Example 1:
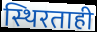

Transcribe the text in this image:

स्थिरताही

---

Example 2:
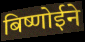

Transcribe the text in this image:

बिष्णोईने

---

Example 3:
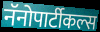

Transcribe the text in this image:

नॅनोपार्टीकल्स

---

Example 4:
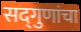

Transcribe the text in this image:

सद्‍गुणांचा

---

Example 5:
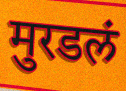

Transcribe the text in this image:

मुरडलं